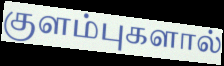
குளம்புகளால்